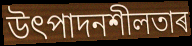
উৎপাদনশীলতাৰ